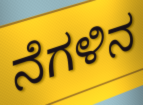
ನೆಗಳಿನ